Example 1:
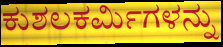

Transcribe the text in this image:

ಕುಶಲಕರ್ಮಿಗಳನ್ನು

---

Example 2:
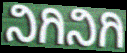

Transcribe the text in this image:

ನಿಗಿನಿಗಿ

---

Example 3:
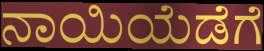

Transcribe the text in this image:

ನಾಯಿಯೆಡೆಗೆ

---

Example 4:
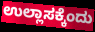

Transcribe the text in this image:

ಉಲ್ಲಾಸಕ್ಕೆಂದು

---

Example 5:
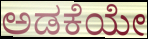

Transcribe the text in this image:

ಅಡಕೆಯೇ